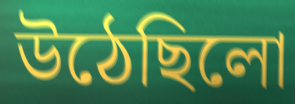
উঠেছিলো